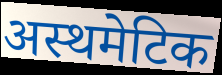
अस्थमेटिक